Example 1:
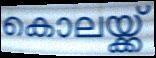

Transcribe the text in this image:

കൊലയ്ക്ക്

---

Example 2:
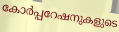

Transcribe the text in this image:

കോർപ്പറേഷനുകളുടെ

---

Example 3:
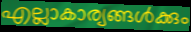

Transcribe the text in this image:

എല്ലാകാര്യങ്ങൾക്കും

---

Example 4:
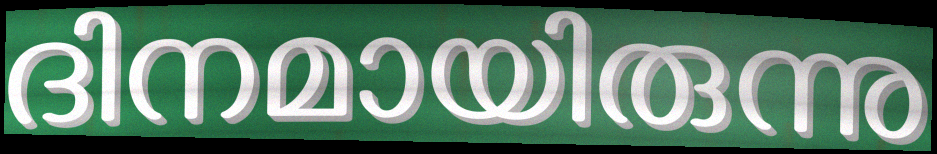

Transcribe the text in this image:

ദിനമായിരുന്നു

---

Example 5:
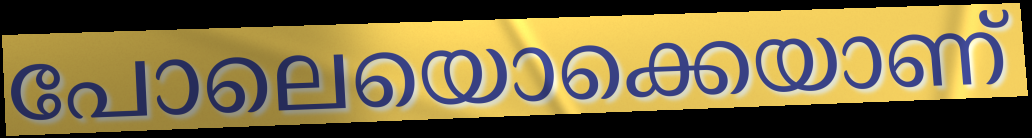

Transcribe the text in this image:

പോലെയൊക്കെയാണ്